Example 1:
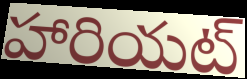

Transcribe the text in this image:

హారియట్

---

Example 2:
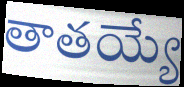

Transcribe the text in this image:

తాతయ్యే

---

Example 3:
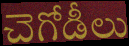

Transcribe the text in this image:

చెగోడీలు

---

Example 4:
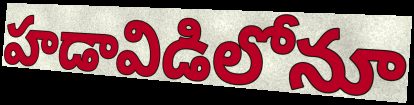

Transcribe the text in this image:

హడావిడిలోనూ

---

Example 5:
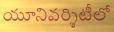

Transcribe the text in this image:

యూనివర్శిటీలో